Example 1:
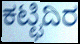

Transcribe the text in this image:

ಕಟ್ಟಿದಿರ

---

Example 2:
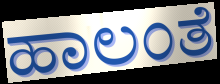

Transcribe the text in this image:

ಹಾಲಂತೆ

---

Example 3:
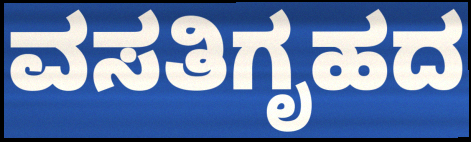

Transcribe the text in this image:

ವಸತಿಗೃಹದ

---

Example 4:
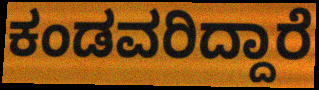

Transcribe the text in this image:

ಕಂಡವರಿದ್ದಾರೆ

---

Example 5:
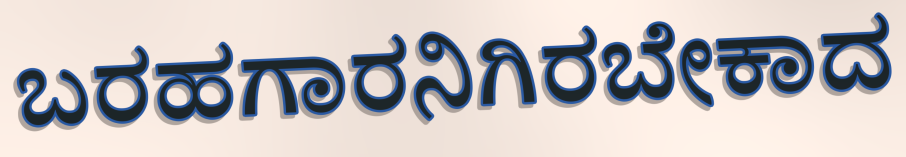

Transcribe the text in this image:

ಬರಹಗಾರನಿಗಿರಬೇಕಾದ